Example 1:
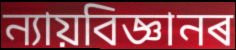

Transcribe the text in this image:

ন্যায়বিজ্ঞানৰ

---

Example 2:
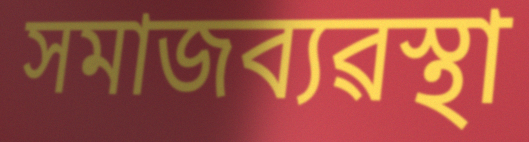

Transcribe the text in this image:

সমাজব্যৱস্থা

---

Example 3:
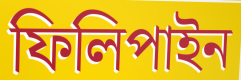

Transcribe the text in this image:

ফিলিপাইন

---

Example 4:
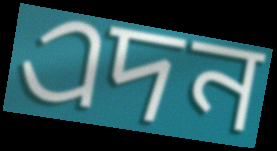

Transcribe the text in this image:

এদন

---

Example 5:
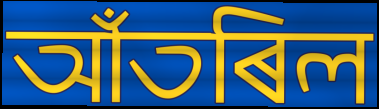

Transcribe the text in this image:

আঁতৰিল